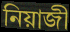
নিয়াজী